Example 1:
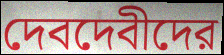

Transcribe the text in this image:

দেবদেবীদের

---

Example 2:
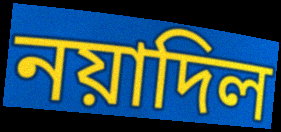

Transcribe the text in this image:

নয়াদিল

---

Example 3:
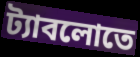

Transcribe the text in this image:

ট্যাবলোতে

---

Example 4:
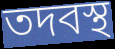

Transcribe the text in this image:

তদবস্থ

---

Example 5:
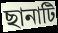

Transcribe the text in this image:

ছানাটি